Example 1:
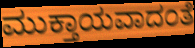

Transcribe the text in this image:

ಮುಕ್ತಾಯವಾದಂತೆ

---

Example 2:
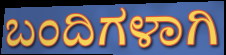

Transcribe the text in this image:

ಬಂದಿಗಳಾಗಿ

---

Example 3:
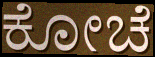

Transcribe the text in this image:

ಕೋಚೆ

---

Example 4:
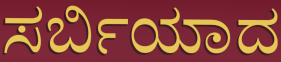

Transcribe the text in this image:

ಸರ್ಬಿಯಾದ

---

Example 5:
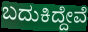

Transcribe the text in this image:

ಬದುಕಿದ್ದೇವೆ